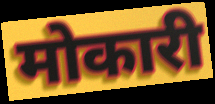
मोकारी